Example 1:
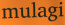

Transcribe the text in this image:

mulagi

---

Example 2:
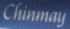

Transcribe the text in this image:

Chinmay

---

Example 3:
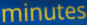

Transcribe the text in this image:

minutes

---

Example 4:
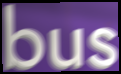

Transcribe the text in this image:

bus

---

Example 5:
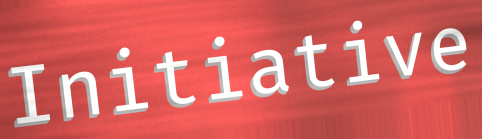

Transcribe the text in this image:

Initiative